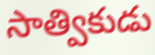
సాత్వికుడు